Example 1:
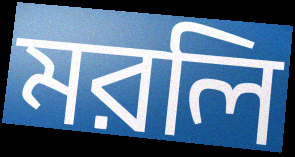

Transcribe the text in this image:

মরলি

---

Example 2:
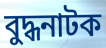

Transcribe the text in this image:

বুদ্ধনাটক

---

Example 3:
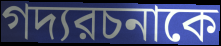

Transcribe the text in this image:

গদ্যরচনাকে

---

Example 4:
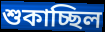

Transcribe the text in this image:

শুকাচ্ছিল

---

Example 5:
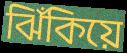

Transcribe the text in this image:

ঝিঁকিয়ে